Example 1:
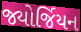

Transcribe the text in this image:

જ્યોર્જિયન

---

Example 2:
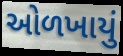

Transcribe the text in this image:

ઓળખાયું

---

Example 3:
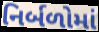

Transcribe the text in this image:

નિર્બળોમાં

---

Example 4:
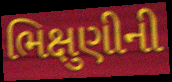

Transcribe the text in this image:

ભિક્ષુણીની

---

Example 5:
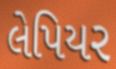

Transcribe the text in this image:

લેપિયર